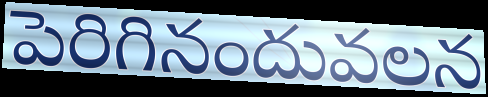
పెరిగినందువలన